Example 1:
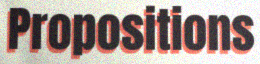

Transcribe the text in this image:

Propositions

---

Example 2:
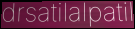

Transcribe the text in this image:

drsatilalpatil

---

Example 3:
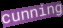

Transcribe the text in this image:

cunning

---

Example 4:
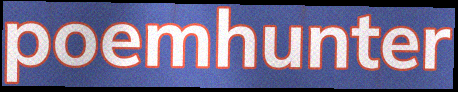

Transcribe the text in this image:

poemhunter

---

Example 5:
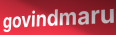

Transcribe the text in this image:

govindmaru